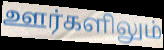
ஊர்களிலும்